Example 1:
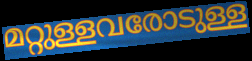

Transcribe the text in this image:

മറ്റുള്ളവരോടുള്ള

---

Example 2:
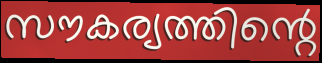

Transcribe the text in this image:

സൗകര്യത്തിന്റെ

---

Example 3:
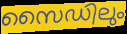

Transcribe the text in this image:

സൈഡിലും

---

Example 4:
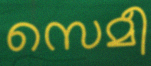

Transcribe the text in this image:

സെമീ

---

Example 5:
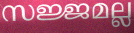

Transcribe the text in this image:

സജ്ജമല്ല